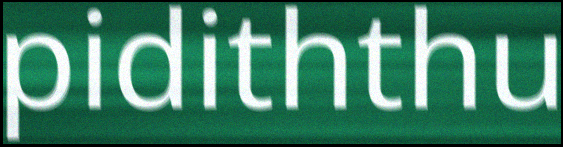
pidiththu